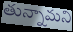
తున్నామని